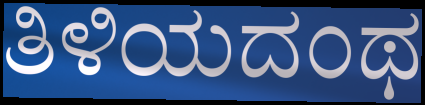
ತಿಳಿಯದಂಥ